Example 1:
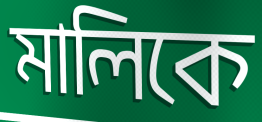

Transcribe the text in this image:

মালিকে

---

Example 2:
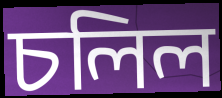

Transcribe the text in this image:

চলিল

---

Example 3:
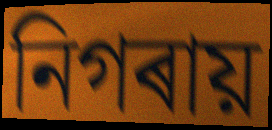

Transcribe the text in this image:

নিগৰায়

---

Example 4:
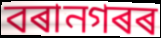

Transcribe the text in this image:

বৰানগৰৰ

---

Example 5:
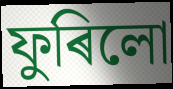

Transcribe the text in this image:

ফুৰিলো